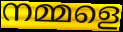
നമ്മളെ